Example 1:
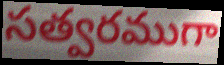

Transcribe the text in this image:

సత్వరముగా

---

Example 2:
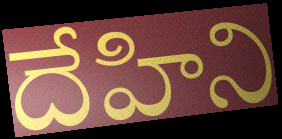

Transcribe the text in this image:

దేహిని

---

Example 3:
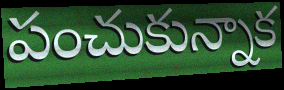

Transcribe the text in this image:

పంచుకున్నాక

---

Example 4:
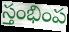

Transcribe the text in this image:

స్తంభింప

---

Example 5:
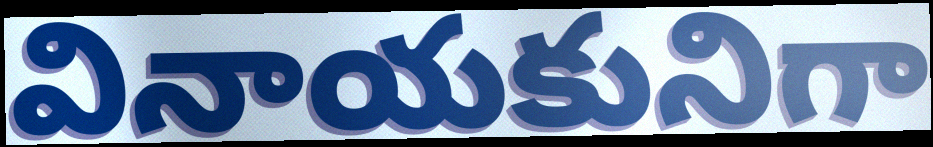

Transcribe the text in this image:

వినాయకునిగా